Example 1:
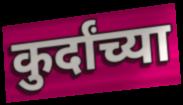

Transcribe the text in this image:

कुर्दांच्या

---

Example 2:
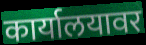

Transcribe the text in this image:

कार्यालयावर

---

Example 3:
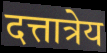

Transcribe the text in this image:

दत्तात्रेय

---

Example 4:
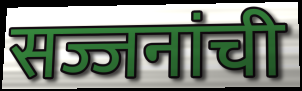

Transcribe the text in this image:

सज्जनांची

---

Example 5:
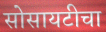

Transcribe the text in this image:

सोसायटीचा